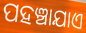
ପହଞ୍ଚାଯାଏ